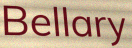
Bellary